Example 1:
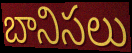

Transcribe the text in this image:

బానిసలు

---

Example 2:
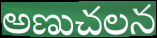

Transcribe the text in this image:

అణుచలన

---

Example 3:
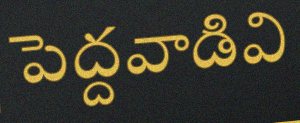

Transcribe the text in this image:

పెద్దవాడివి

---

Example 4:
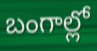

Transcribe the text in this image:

బంగాల్లో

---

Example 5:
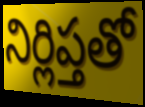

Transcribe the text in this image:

నిర్లిప్తతో